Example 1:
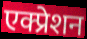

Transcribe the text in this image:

एक्प्रेशन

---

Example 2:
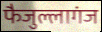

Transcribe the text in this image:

फैजुल्लागंज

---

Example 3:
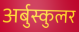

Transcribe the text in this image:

अर्बुस्कुलर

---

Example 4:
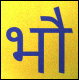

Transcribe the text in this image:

भौ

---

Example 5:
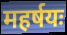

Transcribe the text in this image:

महर्षयः